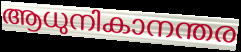
ആധുനികാനന്തര